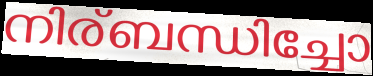
നിര്ബന്ധിച്ചോ